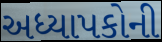
અધ્યાપકોની